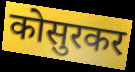
कोसुरकर